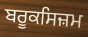
ਬਰੂਕਸਿਜ਼ਮ